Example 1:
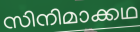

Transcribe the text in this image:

സിനിമാക്കഥ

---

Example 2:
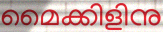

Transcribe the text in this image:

മൈക്കിളിനു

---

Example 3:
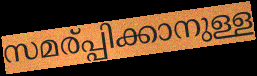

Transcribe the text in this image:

സമര്പ്പിക്കാനുള്ള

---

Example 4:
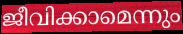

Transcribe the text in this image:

ജീവിക്കാമെന്നും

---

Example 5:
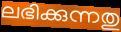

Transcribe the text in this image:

ലഭിക്കുന്നതു